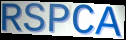
RSPCA